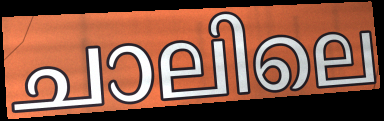
ചാലിലെ